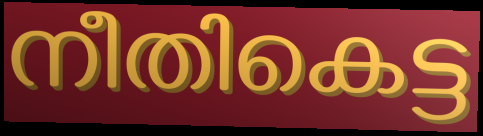
നീതികെട്ട